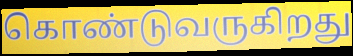
கொண்டுவருகிறது